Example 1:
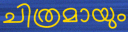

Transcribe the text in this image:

ചിത്രമായും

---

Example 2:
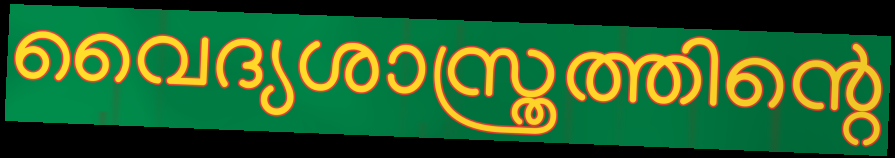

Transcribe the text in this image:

വൈദ്യശാസ്ത്രത്തിന്റെ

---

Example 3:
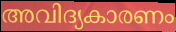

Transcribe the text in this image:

അവിദ്യകാരണം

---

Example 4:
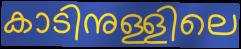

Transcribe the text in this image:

കാടിനുള്ളിലെ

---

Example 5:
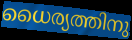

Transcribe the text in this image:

ധൈര്യത്തിനു